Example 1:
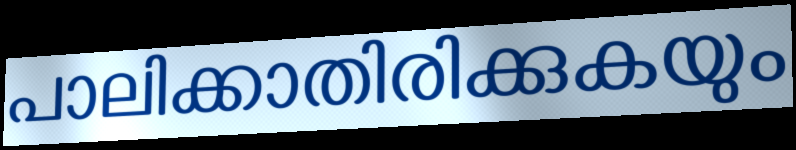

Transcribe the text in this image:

പാലിക്കാതിരിക്കുകയും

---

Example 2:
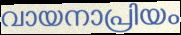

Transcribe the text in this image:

വായനാപ്രിയം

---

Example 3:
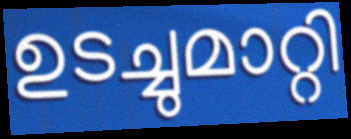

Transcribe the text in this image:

ഉടച്ചുമാറ്റി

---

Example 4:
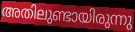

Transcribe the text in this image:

അതിലുണ്ടായിരുന്നു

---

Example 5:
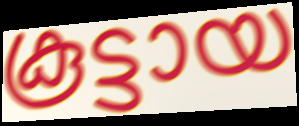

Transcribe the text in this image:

കൂട്ടായ